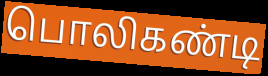
பொலிகண்டி